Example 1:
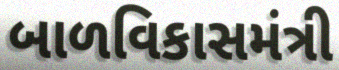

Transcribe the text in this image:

બાળવિકાસમંત્રી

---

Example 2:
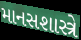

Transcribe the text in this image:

માનસશાસ્ત્રે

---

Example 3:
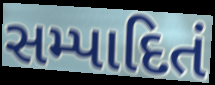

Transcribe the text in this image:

સમ્પાદિતં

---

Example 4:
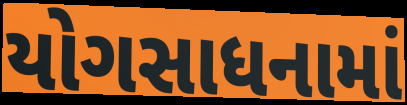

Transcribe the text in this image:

યોગસાધનામાં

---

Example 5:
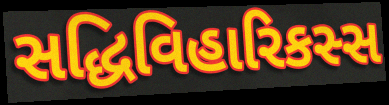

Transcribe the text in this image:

સદ્ધિવિહારિકસ્સ